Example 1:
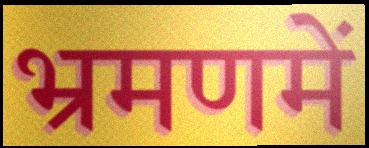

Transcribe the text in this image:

भ्रमणमें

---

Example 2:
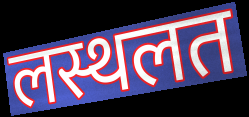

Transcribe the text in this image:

लस्थलत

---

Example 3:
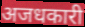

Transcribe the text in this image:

अजधकारी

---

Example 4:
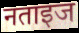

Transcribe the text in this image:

नताइज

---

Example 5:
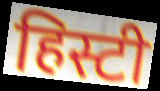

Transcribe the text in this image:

हिस्टी